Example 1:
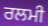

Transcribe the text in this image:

ਰਲਮੀ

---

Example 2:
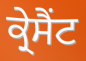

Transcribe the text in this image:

ਕ੍ਰੇਸੈਂਟ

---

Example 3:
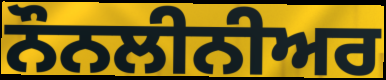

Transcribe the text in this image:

ਨੌਨਲੀਨੀਅਰ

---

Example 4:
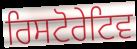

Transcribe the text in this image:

ਰਿਸਟੋਰੇਟਿਵ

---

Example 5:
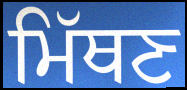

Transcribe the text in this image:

ਮਿੱਥਣ